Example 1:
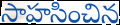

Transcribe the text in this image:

సాహసించిన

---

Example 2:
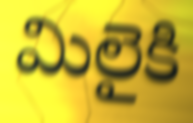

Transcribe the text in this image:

మిలైకి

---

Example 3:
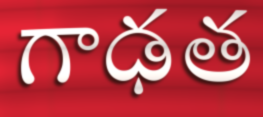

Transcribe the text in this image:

గాఢత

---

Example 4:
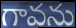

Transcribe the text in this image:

గావను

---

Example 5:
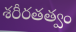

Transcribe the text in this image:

శరీరతత్వం